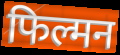
फिल्मन